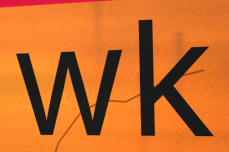
wk